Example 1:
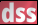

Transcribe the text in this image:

dss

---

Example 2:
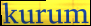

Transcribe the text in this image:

kurum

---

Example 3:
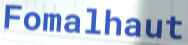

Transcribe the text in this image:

Fomalhaut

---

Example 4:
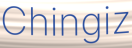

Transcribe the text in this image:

Chingiz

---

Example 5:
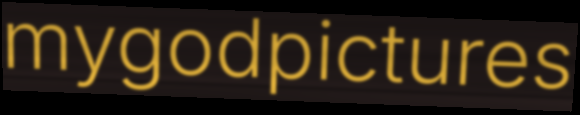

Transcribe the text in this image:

mygodpictures